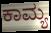
ಕಾಮ್ಯ